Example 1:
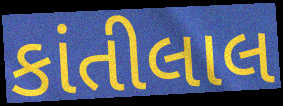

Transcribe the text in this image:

કાંતીલાલ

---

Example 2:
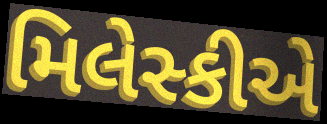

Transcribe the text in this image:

મિલેસ્કીએ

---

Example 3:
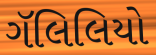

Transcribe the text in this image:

ગૅલિલિયો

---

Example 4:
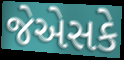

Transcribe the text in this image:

જેએસકે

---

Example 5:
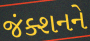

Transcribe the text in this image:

જંક્શનને